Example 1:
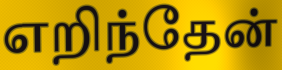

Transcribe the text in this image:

எறிந்தேன்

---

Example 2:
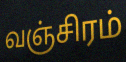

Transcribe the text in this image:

வஞ்சிரம்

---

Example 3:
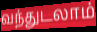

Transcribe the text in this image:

வந்துடலாம்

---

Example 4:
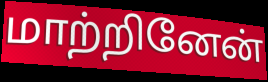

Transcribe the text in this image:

மாற்றினேன்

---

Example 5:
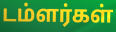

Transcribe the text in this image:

டம்ளர்கள்